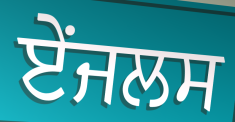
ਏਂਜਲਸ